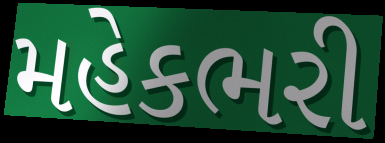
મહેકભરી